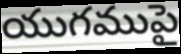
యుగముపై